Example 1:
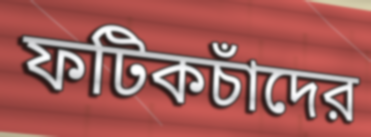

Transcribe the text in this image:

ফটিকচাঁদের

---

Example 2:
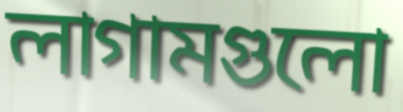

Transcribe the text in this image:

লাগামগুলো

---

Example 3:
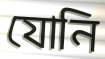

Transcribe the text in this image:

যোনি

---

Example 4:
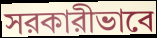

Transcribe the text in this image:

সরকারীভাবে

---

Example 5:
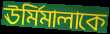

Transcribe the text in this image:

ঊর্মিমালাকে